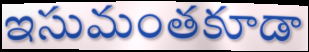
ఇసుమంతకూడా